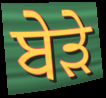
ਬੇੜੇ